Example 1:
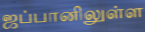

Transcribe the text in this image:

ஜப்பானிலுள்ள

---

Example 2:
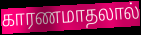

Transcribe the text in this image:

காரணமாதலால்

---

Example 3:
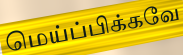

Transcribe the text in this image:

மெய்ப்பிக்கவே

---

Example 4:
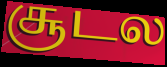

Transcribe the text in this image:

சூடல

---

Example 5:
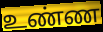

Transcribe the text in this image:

உண்ண